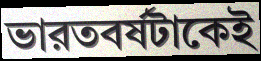
ভারতবর্ষটাকেই